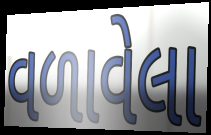
વળાવેલા